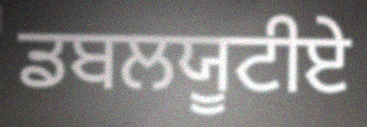
ਡਬਲਯੂਟੀਏ